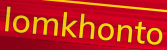
lomkhonto